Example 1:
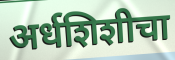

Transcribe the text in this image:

अर्धशिशीचा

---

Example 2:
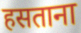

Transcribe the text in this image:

हसताना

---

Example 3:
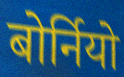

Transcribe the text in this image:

बोर्नियो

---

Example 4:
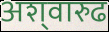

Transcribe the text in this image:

अश्वारुढ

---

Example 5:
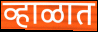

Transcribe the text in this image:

व्हाळात